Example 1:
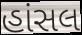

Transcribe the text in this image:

હાંસલ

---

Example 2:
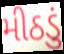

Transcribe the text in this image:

મીઠડું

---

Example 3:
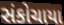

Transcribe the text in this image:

સંકોચાયા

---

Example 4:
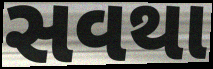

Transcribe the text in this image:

સવથા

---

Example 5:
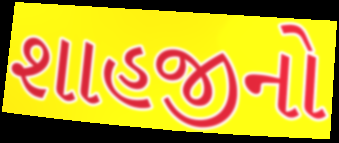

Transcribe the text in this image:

શાહજીનો